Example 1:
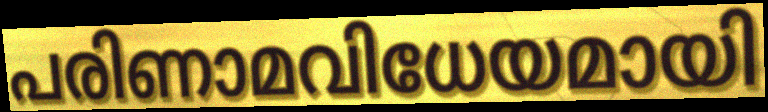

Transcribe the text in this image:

പരിണാമവിധേയമായി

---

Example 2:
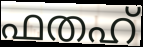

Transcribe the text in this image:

ഫതഹ്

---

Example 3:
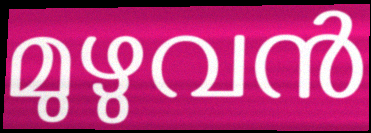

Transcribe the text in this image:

മുഴുവൻ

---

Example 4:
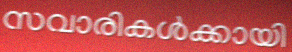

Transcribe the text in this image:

സവാരികൾക്കായി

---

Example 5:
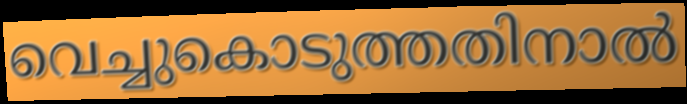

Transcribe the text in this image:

വെച്ചുകൊടുത്തതിനാൽ